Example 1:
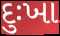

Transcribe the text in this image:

દુઃખા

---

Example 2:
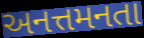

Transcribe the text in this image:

અનત્તમનતા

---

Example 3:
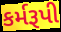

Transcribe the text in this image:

કર્મરૂપી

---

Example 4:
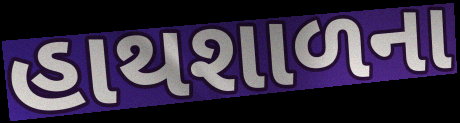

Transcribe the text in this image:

હાથશાળના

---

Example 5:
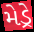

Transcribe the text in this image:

મેડ્રે